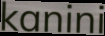
kanini